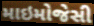
માઇમોજેસી